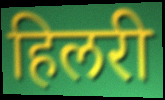
हिलरी